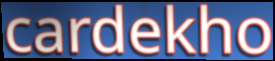
cardekho